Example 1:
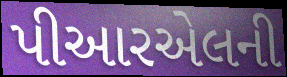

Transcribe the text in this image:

પીઆરએલની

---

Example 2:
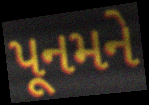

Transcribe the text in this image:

પૂનમને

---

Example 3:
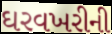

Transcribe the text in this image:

ઘરવખરીની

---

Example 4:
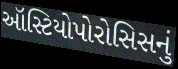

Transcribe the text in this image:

ઑસ્ટિયોપોરોસિસનું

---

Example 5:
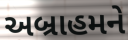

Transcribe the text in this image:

અબ્રાહમને